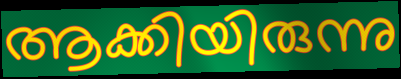
ആക്കിയിരുന്നു